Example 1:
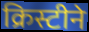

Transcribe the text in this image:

क्रिस्टीने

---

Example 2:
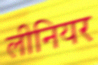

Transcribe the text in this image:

लीनियर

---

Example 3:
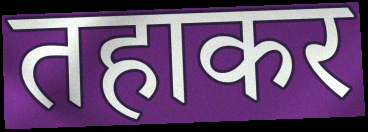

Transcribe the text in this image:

तहाकर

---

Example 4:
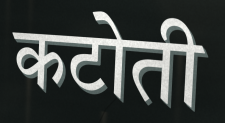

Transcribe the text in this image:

कटोती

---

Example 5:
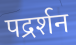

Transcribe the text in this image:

पद्रर्शन